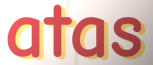
atas